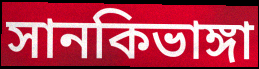
সানকিভাঙ্গা